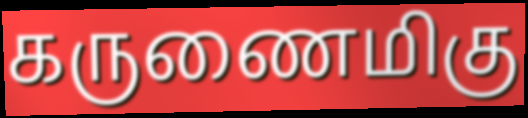
கருணைமிகு